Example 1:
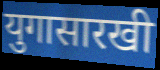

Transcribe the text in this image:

युगासारखी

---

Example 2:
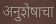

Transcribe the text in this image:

अनुशेषाचा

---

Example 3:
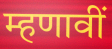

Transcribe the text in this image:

म्हणावीं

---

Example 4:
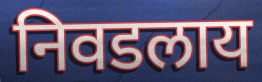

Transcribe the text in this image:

निवडलाय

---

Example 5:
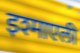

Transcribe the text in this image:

इश्माएली